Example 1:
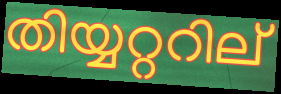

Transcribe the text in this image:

തിയ്യറ്ററില്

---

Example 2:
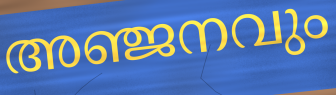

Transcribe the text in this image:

അഞ്ജനവും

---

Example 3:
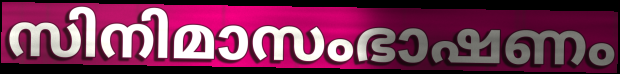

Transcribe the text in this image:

സിനിമാസംഭാഷണം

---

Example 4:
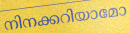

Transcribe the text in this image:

നിനക്കറിയാമോ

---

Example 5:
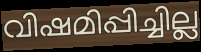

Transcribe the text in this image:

വിഷമിപ്പിച്ചില്ല